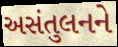
અસંતુલનને